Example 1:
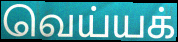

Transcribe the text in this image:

வெய்யக்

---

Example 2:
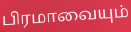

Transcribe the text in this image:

பிரமாவையும்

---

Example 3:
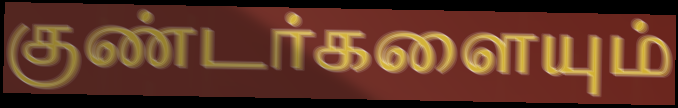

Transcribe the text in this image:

குண்டர்களையும்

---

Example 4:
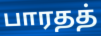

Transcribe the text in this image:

பாரதத்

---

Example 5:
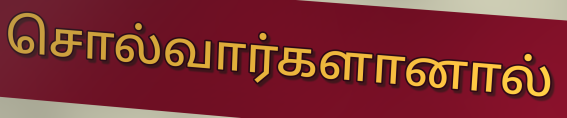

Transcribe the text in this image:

சொல்வார்களானால்